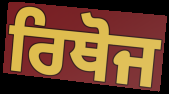
ਰਿਥੋਜ